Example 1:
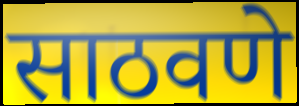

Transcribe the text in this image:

साठवणे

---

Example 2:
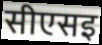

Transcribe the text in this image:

सीएसइ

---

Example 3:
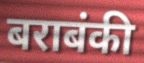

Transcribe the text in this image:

बराबंकी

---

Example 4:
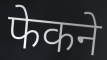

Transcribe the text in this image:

फेकने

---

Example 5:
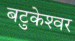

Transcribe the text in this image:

बटुकेश्‍वर